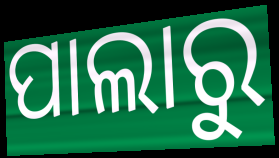
ପାଲାରୁ